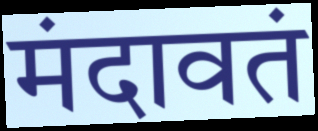
मंदावतं